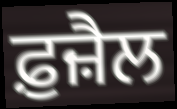
ਫ਼ੁਜ਼ੈਲ